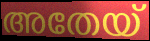
അതേയ്